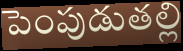
పెంపుడుతల్లి